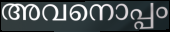
അവനൊപ്പം